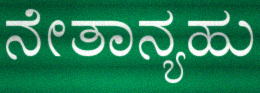
ನೇತಾನ್ಯಹು